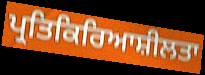
ਪ੍ਰਤਿਕਿਰਿਆਸ਼ੀਲਤਾ